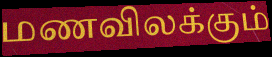
மணவிலக்கும்